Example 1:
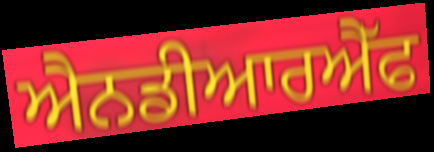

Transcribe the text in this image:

ਐਨਡੀਆਰਐੱਫ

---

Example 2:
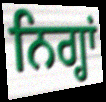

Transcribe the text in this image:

ਨਿਗ੍ਹਾਂ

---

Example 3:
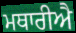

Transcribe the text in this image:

ਮਥਾਰੀਐ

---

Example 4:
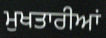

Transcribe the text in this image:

ਮੁਖਤਾਰੀਆਂ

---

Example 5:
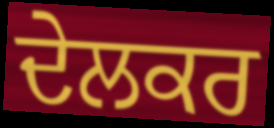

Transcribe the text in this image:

ਦੇਲਕਰ